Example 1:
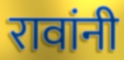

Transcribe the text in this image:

रावांनी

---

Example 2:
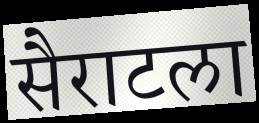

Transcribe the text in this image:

सैराटला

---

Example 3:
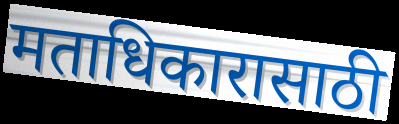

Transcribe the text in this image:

मताधिकारासाठी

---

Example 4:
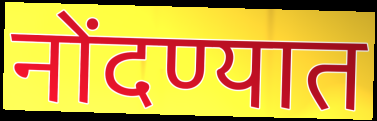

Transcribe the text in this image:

नोंदण्यात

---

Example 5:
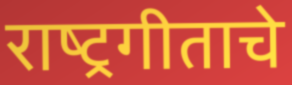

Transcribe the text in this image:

राष्ट्रगीताचे